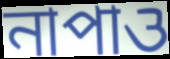
নাপাও